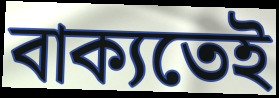
বাক্যতেই